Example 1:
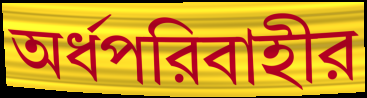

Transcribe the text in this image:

অর্ধপরিবাহীর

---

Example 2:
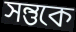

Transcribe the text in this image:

সন্তুকে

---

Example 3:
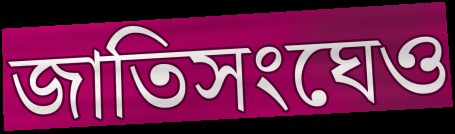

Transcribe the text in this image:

জাতিসংঘেও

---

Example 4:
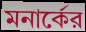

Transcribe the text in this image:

মনার্কের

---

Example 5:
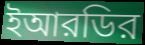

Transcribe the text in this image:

ইআরডির